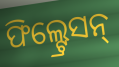
ଫିଲ୍ଟ୍ରେସନ୍